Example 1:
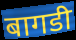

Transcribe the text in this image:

बागडी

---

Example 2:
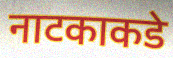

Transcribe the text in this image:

नाटकाकडे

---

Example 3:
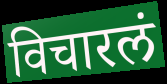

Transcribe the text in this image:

विचारलं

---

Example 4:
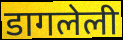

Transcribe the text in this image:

डागलेली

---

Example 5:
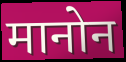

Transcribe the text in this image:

मानोन